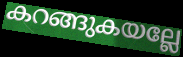
കറങ്ങുകയല്ലേ